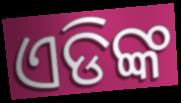
ଏଡିଙ୍କ